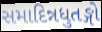
સમાદિન્નધુતઙ્ગો